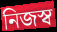
নিজস্ব